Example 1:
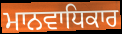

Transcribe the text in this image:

ਮਾਨਵਾਧਿਕਾਰ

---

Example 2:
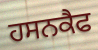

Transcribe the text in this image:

ਹਸਨਕੈਫ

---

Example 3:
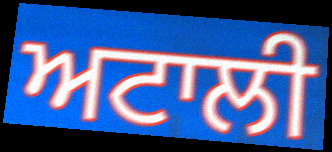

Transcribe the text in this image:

ਅਟਾਲੀ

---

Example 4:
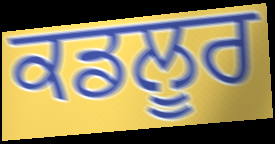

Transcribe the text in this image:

ਕਡਲੂਰ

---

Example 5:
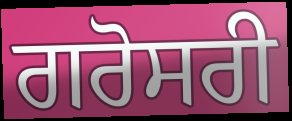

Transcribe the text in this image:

ਗਰੋਸਰੀ